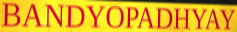
BANDYOPADHYAY